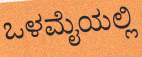
ಒಳಮೈಯಲ್ಲಿ